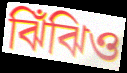
ঝিঁঝিও